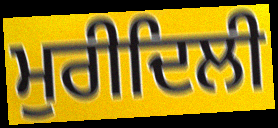
ਮੁਰੀਦਿਲੀ